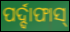
ପର୍ଦ୍ଦାଫାସ୍